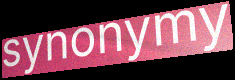
synonymy